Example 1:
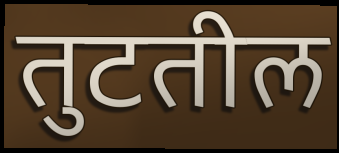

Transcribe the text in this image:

तुटतील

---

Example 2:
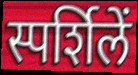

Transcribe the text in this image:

स्पर्शिलें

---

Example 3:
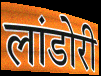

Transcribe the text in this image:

लांडोरी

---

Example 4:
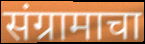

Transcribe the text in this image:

संग्रामाचा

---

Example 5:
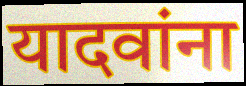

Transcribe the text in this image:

यादवांना